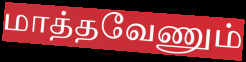
மாத்தவேணும்